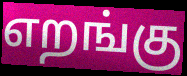
எறங்கு